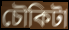
চৌকিটা